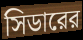
সিডারের